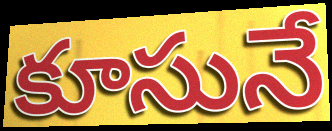
కూసునే